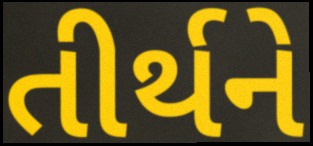
તીર્થને